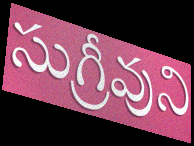
సుగ్రీవుని